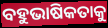
ବହୁଭାଷିକତାକୁ